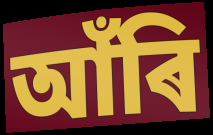
আঁৰি